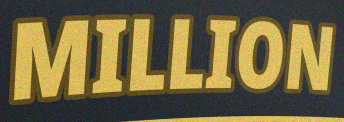
MILLION